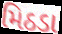
મિઠડા